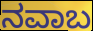
ನವಾಬ